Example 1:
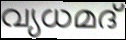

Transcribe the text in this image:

വ്യധമദ്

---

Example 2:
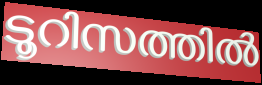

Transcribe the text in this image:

ടൂറിസത്തിൽ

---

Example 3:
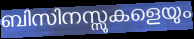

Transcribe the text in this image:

ബിസിനസ്സുകളെയും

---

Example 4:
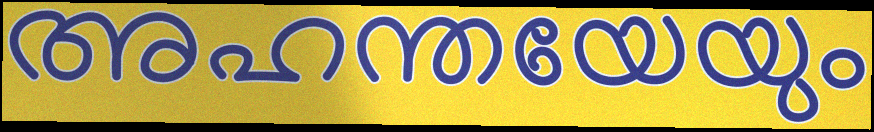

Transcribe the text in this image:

അഹന്തയേയും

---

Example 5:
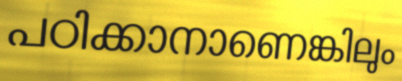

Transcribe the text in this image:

പഠിക്കാനാണെങ്കിലും